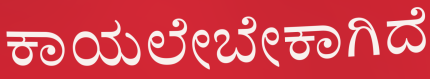
ಕಾಯಲೇಬೇಕಾಗಿದೆ